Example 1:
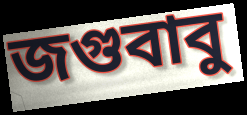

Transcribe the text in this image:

জগুবাবু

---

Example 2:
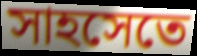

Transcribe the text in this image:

সাহসেতে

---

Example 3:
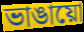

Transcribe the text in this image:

ভাঙায়ো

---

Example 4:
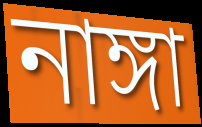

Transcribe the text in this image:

নাঙ্গা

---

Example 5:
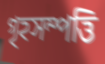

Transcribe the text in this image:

গৃহসম্পত্তি